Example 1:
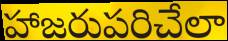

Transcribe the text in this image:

హాజరుపరిచేలా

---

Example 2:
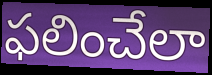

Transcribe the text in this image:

ఫలించేలా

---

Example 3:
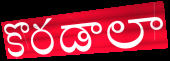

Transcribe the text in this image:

కొరడాలా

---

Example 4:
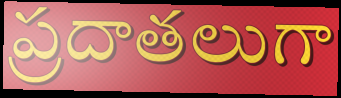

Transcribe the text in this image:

ప్రదాతలుగా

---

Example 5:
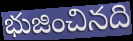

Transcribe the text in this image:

భుజించినది